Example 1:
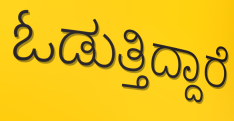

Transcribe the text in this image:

ಓಡುತ್ತಿದ್ದಾರೆ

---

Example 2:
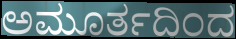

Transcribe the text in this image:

ಅಮೂರ್ತದಿಂದ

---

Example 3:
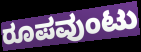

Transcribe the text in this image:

ರೂಪವುಂಟು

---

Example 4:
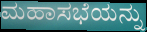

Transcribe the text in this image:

ಮಹಾಸಭೆಯನ್ನು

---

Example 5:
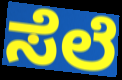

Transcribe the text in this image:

ಸೆಲೆ